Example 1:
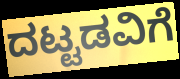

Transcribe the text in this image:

ದಟ್ಟಡವಿಗೆ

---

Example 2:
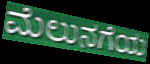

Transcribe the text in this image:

ಮೆಲುನಗೆಯ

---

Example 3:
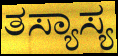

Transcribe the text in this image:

ತಸ್ಯಾಸ್ಯ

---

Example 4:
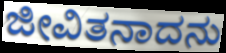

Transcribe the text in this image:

ಜೀವಿತನಾದನು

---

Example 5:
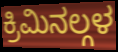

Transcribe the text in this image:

ಕ್ರಿಮಿನಲ್ಗಳ